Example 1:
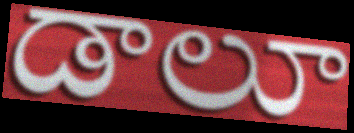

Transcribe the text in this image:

డాలూ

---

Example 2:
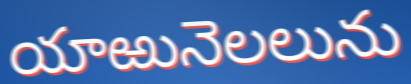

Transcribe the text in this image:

యాఱునెలలును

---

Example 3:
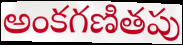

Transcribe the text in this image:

అంకగణితపు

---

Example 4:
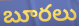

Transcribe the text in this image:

బూరలు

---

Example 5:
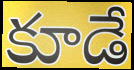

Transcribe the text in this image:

కూడే